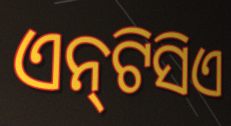
ଏନ୍‌ଟିସିଏ